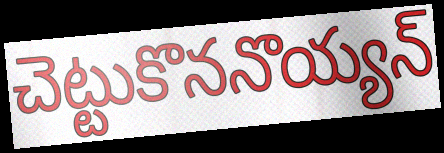
చెట్టుకొననొయ్యన్